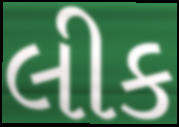
લીક